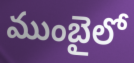
ముంబైలో